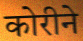
कोरीने